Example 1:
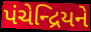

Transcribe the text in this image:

પંચેન્દ્રિયને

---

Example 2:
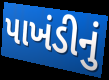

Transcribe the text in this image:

પાખંડીનું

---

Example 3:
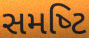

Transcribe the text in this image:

સમષ્‍ટિ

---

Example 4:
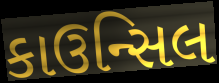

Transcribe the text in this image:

કાઉન્‍સિલ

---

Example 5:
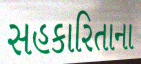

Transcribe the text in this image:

સહકારિતાના